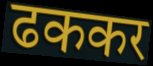
ढककर